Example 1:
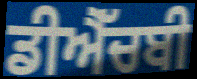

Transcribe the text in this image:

ਡੀਐੱਚਬੀ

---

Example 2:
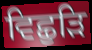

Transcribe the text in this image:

ਵਿਛੁੜਿ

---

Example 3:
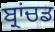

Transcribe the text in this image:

ਬ੍ਰਾਂਚਡ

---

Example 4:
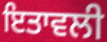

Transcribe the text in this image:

ਇਤਾਵਲੀ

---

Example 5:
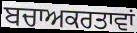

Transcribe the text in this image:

ਬਚਾਅਕਰਤਾਵਾਂ